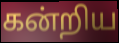
கன்றிய